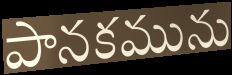
పానకమును